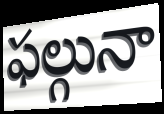
ఫల్గునా